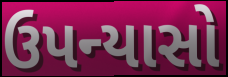
ઉપન્યાસો